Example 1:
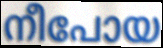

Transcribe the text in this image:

നീപോയ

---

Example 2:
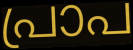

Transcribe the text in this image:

പ്രാപ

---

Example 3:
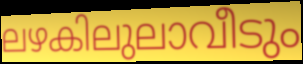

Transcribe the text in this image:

ലഴകിലുലാവീടും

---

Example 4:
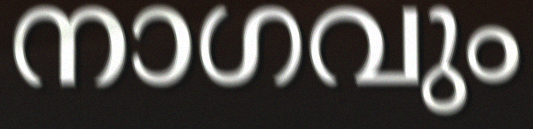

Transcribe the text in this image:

നാഗവും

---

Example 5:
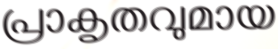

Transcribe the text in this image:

പ്രാകൃതവുമായ